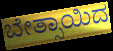
ಬೇತ್ಸಾಯಿದ